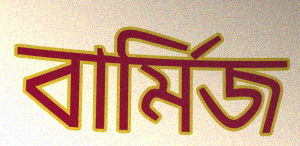
বার্মিজ